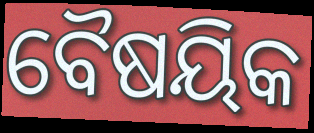
ବୈଷୟିକ